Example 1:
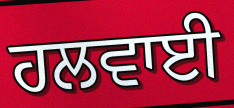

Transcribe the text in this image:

ਹਲਵਾਈ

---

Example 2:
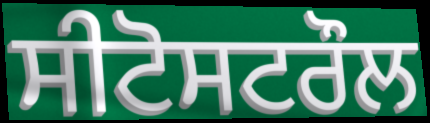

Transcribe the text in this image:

ਸੀਟੋਸਟਰੌਲ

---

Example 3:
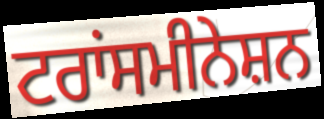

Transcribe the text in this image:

ਟਰਾਂਸਮੀਨੇਸ਼ਨ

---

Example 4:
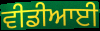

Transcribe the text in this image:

ਵੀਡੀਆਈ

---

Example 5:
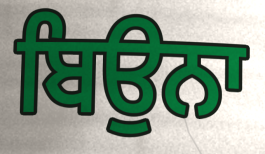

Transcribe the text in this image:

ਬਿਉਨਾ